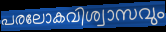
പരലോകവിശ്വാസവും